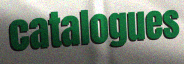
catalogues